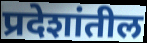
प्रदेशांतील